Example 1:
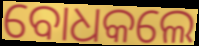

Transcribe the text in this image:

ବୋଧକଲେ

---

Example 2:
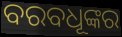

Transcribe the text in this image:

ବରବଧୂଙ୍କର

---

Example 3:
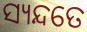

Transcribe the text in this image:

ସ୍ଯନ୍ଦତେ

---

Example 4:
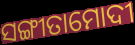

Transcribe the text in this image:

ସଙ୍ଗୀତାମୋଦୀ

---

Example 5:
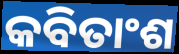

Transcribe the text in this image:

କବିତାଂଶ